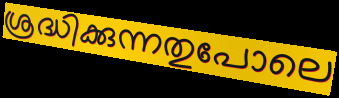
ശ്രദ്ധിക്കുന്നതുപോലെ